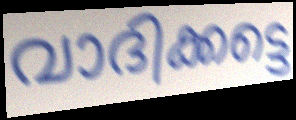
വാദിക്കട്ടെ